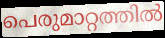
പെരുമാറ്റത്തിൽ